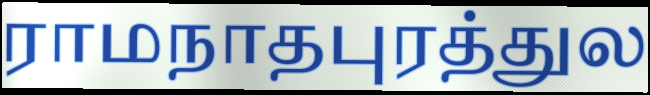
ராமநாதபுரத்துல